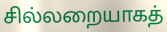
சில்லறையாகத்